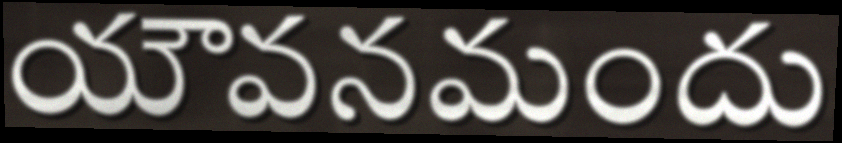
యౌవనమందు